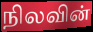
நிலவின்